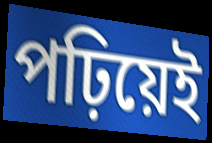
পঢ়িয়েই